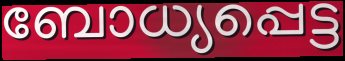
ബോധ്യപ്പെട്ട